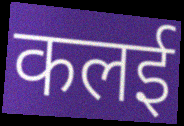
कलई